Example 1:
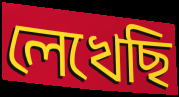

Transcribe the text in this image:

লেখেছি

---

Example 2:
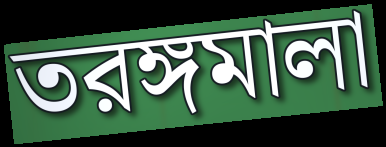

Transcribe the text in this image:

তরঙ্গমালা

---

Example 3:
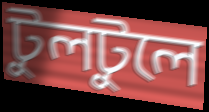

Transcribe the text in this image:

টুলটুলে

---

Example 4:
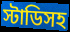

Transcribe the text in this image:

স্টাডিসহ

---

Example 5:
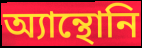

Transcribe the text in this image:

অ্যান্থোনি